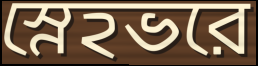
স্নেহভরে